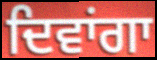
ਦਿਵਾਂਗਾ